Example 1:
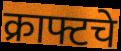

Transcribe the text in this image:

क्राफ्टचे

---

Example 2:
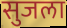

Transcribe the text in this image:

सुजला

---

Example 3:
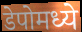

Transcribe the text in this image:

डेपोमध्ये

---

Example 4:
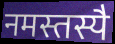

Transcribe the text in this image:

नमस्तस्यै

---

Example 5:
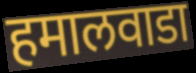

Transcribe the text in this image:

हमालवाडा